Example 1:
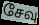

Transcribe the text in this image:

சேவு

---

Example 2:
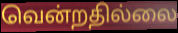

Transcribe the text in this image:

வென்றதில்லை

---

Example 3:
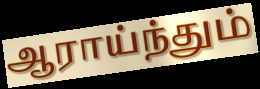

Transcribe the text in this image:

ஆராய்ந்தும்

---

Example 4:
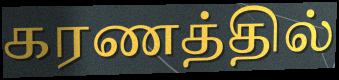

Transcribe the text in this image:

கரணத்தில்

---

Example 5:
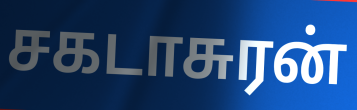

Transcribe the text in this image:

சகடாசுரன்